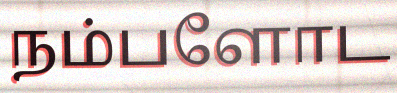
நம்பளோட